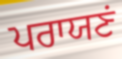
ਪਰਾਯਣਂ